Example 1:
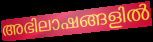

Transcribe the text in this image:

അഭിലാഷങ്ങളിൽ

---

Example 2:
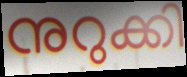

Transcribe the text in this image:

നുറുക്കി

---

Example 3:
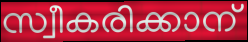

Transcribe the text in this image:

സ്വീകരിക്കാന്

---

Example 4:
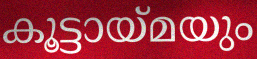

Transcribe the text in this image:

കൂട്ടായ്മയും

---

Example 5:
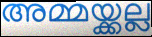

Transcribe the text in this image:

അമ്മയ്ക്കല്ല